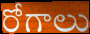
రోగాలు